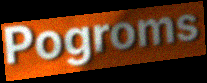
Pogroms